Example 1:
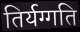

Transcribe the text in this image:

तिर्यग्गति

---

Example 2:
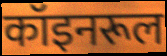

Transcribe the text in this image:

कॉइनरूल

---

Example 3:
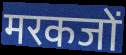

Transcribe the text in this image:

मरकजों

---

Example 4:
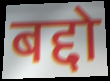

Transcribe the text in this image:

बद्दो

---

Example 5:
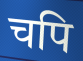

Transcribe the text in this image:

चपि